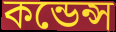
কন্ডেন্স